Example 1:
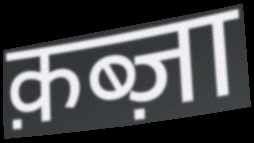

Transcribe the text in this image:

क़ब्ज़ा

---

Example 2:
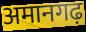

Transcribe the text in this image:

अमानगढ़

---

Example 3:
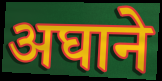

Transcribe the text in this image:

अघाने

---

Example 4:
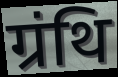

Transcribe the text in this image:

ग्रंथि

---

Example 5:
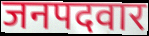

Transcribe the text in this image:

जनपदवार